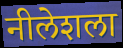
नीलेशला